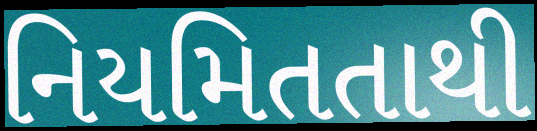
નિયમિતતાથી